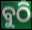
ବୁଠି